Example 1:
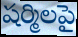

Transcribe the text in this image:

షర్మిలపై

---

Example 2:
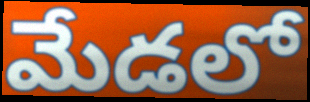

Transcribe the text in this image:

మేడలో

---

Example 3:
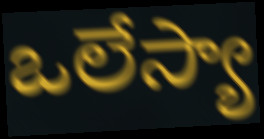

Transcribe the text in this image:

ఒలేస్యా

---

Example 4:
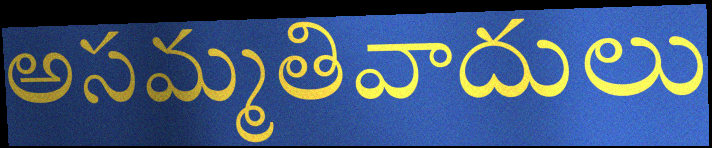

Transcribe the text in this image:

అసమ్మతివాదులు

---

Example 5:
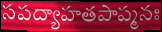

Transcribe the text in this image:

సపద్యాహతపాప్మనః